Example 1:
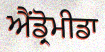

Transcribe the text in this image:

ਐਂਡ੍ਰੋਮੀਡਾ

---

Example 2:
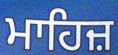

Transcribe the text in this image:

ਮਾਹਿਜ਼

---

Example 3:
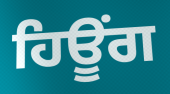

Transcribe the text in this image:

ਹਿਊੰਗ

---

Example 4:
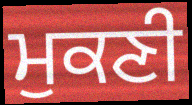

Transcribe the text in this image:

ਮੁਕਣੀ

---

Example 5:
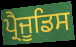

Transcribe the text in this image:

ਪ੍ਰੈਜੂਡਿਸ